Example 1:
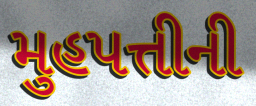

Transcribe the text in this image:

મુહપત્તીની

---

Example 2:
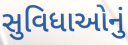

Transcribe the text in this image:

સુવિધાઓનું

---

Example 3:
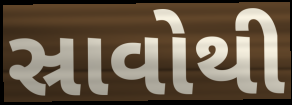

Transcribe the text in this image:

સ્રાવોથી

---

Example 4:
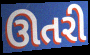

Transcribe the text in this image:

ઊતરી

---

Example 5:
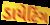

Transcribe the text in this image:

ડાયેટિંગ